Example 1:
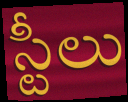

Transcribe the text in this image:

స్టీలు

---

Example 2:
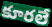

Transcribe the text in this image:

కూరలే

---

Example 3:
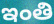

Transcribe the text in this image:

ఇంతి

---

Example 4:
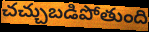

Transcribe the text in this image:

చచ్చుబడిపోతుంది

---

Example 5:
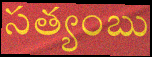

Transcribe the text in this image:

సత్యంబు